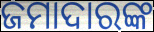
ଜମାଦାରଙ୍କ